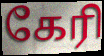
கேரி